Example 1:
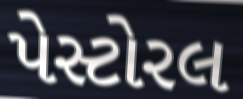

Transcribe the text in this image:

પેસ્ટોરલ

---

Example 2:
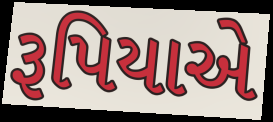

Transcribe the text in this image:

રૂપિયાએ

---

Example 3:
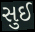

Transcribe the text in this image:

સુઈ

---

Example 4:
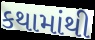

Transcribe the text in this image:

કથામાંથી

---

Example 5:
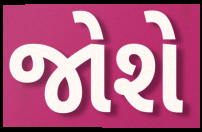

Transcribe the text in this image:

જોશે